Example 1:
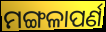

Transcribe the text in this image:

ମଙ୍ଗଳାପର୍ଣ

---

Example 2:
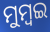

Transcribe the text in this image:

ମୁମ୍ବଇ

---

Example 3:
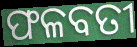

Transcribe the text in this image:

ଫଳବତୀ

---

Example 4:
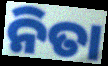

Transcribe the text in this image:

ନିତା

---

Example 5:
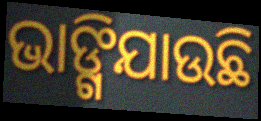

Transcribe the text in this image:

ଭାଙ୍ଗିଯାଉଛି